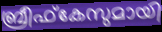
ബ്രീഫ്കേസുമായി